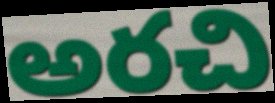
అరచి